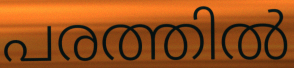
പരത്തിൽ